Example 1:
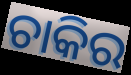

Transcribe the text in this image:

ଚାକିର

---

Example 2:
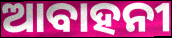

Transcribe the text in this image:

ଆବାହନୀ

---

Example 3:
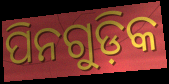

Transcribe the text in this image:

ପିନଗୁଡ଼ିକ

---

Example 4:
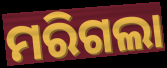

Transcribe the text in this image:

ମରିଗଲା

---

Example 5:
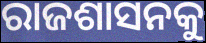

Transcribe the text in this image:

ରାଜଶାସନକୁ